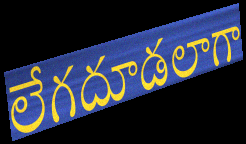
లేగదూడలాగా